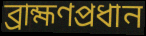
ব্রাহ্মণপ্রধান